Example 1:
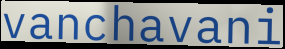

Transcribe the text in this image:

vanchavani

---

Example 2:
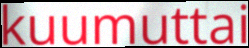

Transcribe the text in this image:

kuumuttai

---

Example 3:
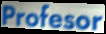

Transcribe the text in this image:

Profesor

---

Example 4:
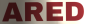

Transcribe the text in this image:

ARED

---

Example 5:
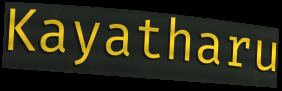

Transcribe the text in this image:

Kayatharu